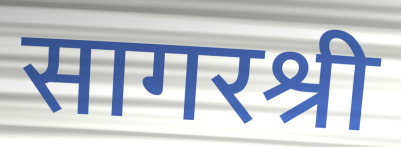
सागरश्री